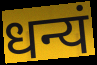
धन्यं